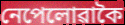
নেপেলোৱাকৈ